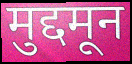
मुद्दमून